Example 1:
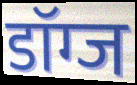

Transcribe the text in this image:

डॉग्ज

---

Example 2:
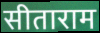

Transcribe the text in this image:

सीताराम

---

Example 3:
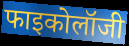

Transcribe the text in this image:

फाइकोलॉजी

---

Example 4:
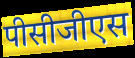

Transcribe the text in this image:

पीसीजीएस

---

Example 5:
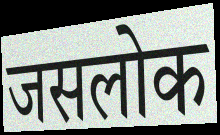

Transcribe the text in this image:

जसलोक